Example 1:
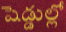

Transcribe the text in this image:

షెడ్డుల్లో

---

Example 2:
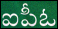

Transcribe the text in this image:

ఐపీఓ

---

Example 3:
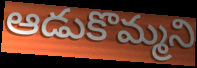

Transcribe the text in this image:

ఆడుకొమ్మని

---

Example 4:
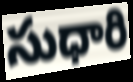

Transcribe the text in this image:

సుధారి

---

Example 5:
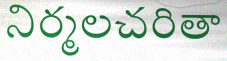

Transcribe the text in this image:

నిర్మలచరితా